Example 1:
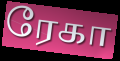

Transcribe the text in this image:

ரேகா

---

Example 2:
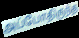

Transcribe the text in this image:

அப்போதிருந்த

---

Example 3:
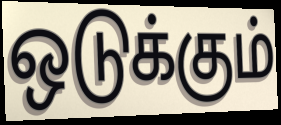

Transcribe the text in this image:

ஒடுக்கும்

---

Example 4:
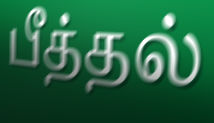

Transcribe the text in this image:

பீத்தல்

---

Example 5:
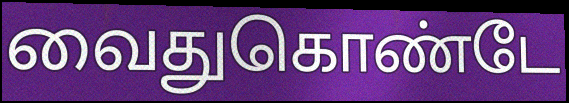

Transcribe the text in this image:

வைதுகொண்டே